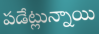
పడేట్లున్నాయి